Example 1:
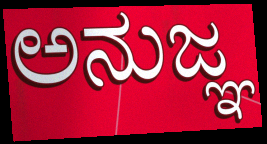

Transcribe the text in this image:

ಅನುಜ್ಞ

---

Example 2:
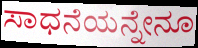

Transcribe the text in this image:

ಸಾಧನೆಯನ್ನೇನೂ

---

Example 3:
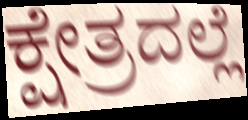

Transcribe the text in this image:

ಕ್ಷೇತ್ರದಲ್ಲೆ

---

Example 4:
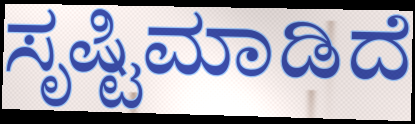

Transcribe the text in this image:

ಸೃಷ್ಟಿಮಾಡಿದೆ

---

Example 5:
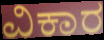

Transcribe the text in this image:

ವಿಕಾರ